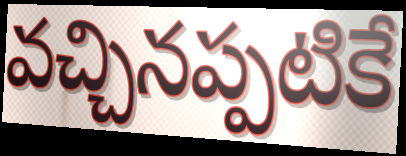
వచ్చినప్పటికే